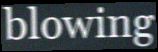
blowing